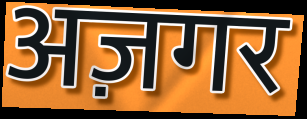
अज़गर